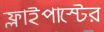
ফ্লাইপাস্টের